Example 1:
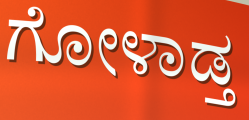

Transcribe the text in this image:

ಗೋಳಾಡ್ತ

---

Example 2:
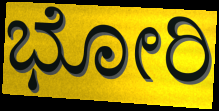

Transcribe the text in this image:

ಭೋರಿ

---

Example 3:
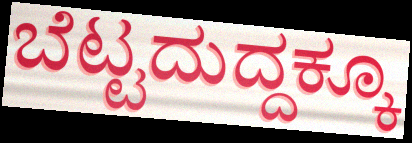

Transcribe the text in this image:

ಬೆಟ್ಟದುದ್ದಕ್ಕೂ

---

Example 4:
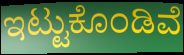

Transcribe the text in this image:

ಇಟ್ಟುಕೊಂಡಿವೆ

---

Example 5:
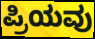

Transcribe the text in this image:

ಪ್ರಿಯವು